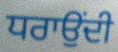
ਧਰਾਉਂਦੀ